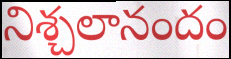
నిశ్చలానందం